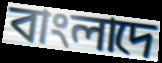
বাংলাদে